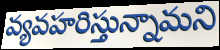
వ్యవహరిస్తున్నామని